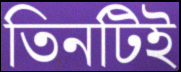
তিনটিই